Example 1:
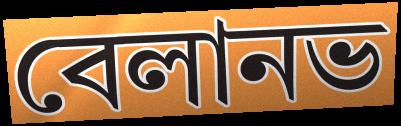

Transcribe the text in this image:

বেলানভ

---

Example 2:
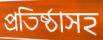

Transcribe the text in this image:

প্রতিষ্ঠাসহ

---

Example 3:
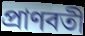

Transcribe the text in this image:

প্রাণবতী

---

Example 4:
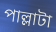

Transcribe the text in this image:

পাল্লাটা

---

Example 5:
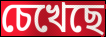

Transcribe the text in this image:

চেখেছে